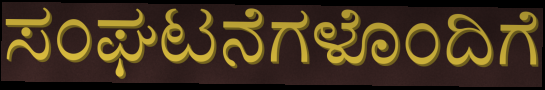
ಸಂಘಟನೆಗಳೊಂದಿಗೆ